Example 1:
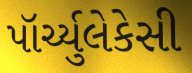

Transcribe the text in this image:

પૉર્ચ્યુલેકેસી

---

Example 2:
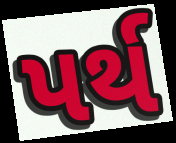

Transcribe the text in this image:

પર્થ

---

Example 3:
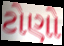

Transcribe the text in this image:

ટોણો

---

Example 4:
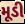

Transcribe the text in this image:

મૂડી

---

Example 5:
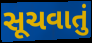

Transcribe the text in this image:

સૂચવાતું